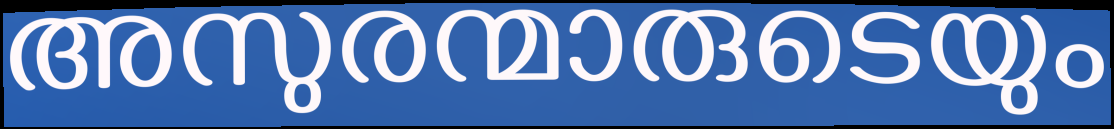
അസുരന്മാരുടെയും